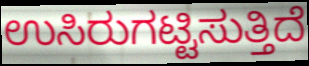
ಉಸಿರುಗಟ್ಟಿಸುತ್ತಿದೆ